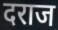
दराज